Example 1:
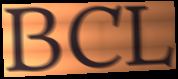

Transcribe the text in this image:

BCL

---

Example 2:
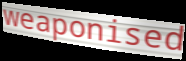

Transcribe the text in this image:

weaponised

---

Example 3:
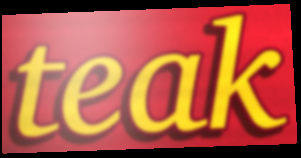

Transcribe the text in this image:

teak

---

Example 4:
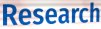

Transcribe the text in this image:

Research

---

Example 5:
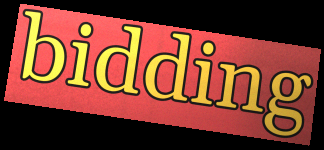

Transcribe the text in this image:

bidding